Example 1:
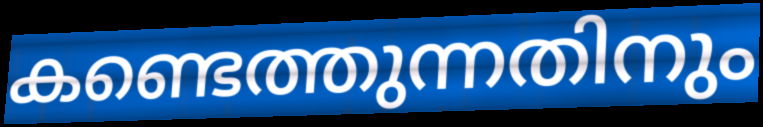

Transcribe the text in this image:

കണ്ടെത്തുന്നതിനും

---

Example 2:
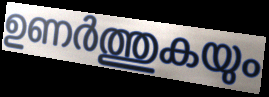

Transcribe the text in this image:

ഉണർത്തുകയും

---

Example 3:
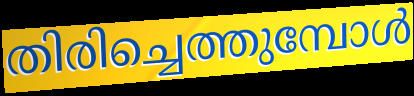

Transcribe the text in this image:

തിരിച്ചെത്തുമ്പോൾ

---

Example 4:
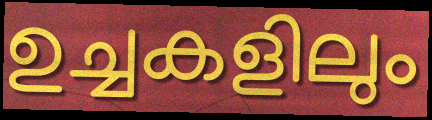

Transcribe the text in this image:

ഉച്ചകളിലും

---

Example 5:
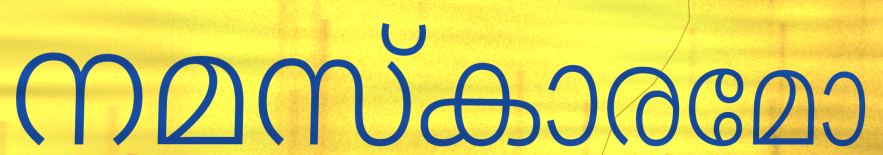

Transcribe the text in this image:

നമസ്കാരമോ